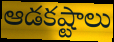
ఆడకష్టాలు